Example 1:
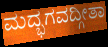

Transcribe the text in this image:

ಮದ್ಭಗವದ್ಗೀತಾ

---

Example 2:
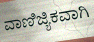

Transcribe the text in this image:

ವಾಣಿಜ್ಯಿಕವಾಗಿ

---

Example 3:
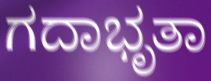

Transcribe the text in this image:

ಗದಾಭೃತಾ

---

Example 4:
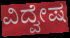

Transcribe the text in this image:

ವಿದ್ವೇಷ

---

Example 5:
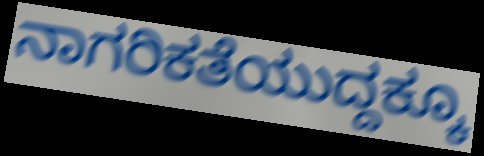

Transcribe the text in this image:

ನಾಗರಿಕತೆಯುದ್ದಕ್ಕೂ